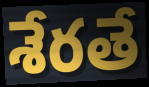
శేరతే